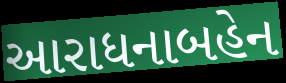
આરાધનાબહેન